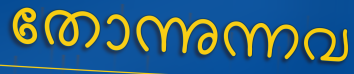
തോന്നുന്നവ